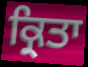
ਕ੍ਰਿਤਾ